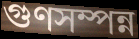
গুণসম্পন্ন